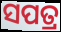
ସପତ୍ର